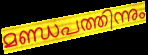
മണ്ഡപത്തിന്നും